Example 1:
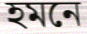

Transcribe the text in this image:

হমনে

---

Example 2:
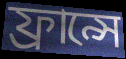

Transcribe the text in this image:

ফ্রান্সে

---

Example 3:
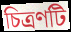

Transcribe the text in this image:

চিত্রণটি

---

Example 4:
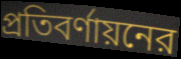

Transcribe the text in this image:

প্রতিবর্ণায়নের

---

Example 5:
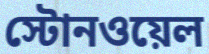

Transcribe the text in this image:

স্টোনওয়েল